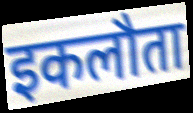
इकलौता